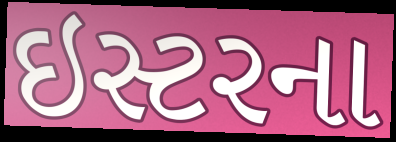
ઇસ્ટરના